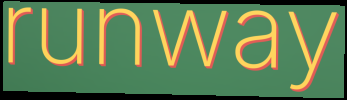
runway